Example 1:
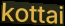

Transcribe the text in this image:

kottai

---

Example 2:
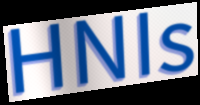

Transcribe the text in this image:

HNIs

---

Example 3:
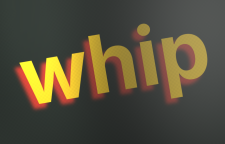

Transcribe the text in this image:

whip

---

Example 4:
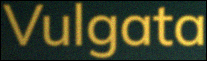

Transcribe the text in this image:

Vulgata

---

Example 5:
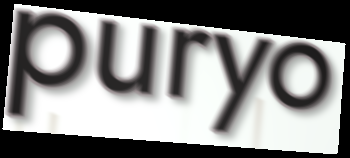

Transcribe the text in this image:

puryo